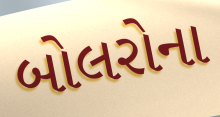
બોલરોના